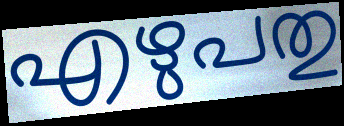
എഴുപതു